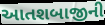
આતશબાજીની